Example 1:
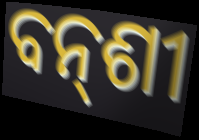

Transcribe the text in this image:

ବନ୍‌ଶୀ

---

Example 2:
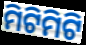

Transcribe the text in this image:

ମିଟିମିଟି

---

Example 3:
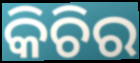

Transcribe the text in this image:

କିଚିର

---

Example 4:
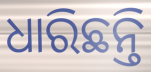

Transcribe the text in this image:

ଧାରିଛନ୍ତି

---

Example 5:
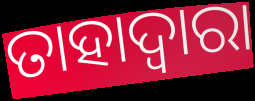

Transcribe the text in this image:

ତାହାଦ୍ୱାରା